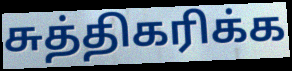
சுத்திகரிக்க